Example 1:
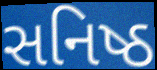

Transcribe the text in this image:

સનિષ્ઠ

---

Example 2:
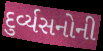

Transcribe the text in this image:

દુર્વ્યસનોની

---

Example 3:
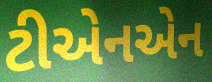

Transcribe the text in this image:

ટીએનએન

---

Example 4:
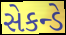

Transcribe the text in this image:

સેકન્ડે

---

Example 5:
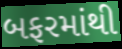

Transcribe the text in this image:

બફરમાંથી